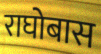
राघोबास